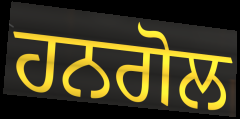
ਹਨਗੋਲ